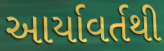
આર્યાવર્તથી